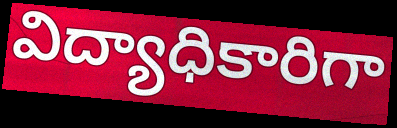
విద్యాధికారిగా